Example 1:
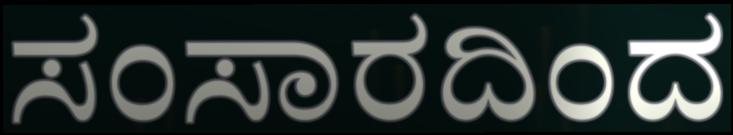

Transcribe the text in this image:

ಸಂಸಾರದಿಂದ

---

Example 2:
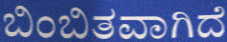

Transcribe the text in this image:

ಬಿಂಬಿತವಾಗಿದೆ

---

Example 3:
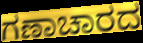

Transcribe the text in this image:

ಗಣಾಚಾರದ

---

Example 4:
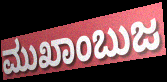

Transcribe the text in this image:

ಮುಖಾಂಬುಜ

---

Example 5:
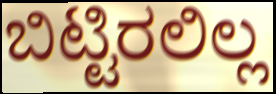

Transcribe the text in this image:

ಬಿಟ್ಟಿರಲಿಲ್ಲ